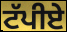
ਟੱਪੀਏ